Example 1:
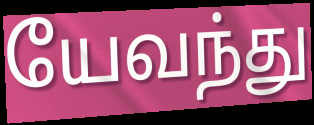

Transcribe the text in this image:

யேவந்து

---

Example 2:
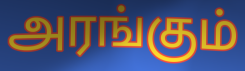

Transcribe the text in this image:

அரங்கும்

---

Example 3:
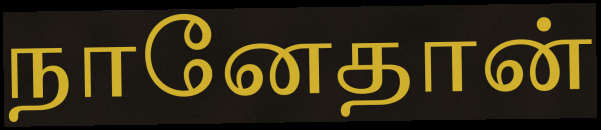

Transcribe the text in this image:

நானேதான்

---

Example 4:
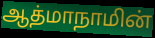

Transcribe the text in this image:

ஆத்மாநாமின்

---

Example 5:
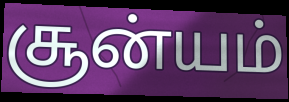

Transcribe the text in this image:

சூன்யம்